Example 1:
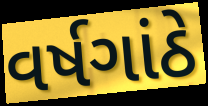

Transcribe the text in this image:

વર્ષગાંઠે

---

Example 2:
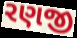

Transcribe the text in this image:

રણજી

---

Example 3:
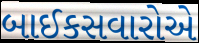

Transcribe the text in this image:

બાઈકસવારોએ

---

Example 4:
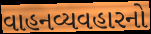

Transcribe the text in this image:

વાહનવ્યવહારનો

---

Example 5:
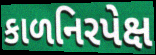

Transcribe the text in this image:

કાળનિરપેક્ષ